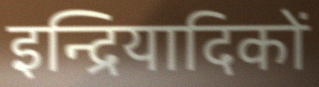
इन्द्रियादिकों